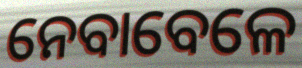
ନେବାବେଳେ